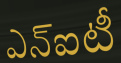
ఎన్ఐటీ